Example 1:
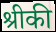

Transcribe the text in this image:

श्रीकी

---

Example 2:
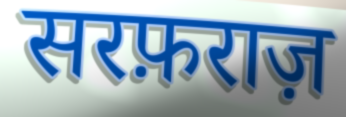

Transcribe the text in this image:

सरफ़राज़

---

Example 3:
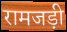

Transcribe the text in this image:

रामजड़ी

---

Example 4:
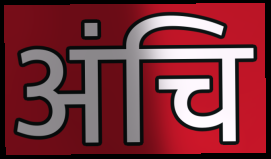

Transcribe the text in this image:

अंचि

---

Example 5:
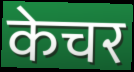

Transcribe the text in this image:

केचर